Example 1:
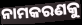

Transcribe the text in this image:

ନାମକରଣକୁ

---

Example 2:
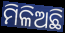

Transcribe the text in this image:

ମିଳିଅଛି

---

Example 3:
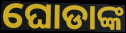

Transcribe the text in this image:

ଘୋଡାଙ୍କ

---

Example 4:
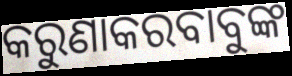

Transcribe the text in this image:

କରୁଣାକରବାବୁଙ୍କ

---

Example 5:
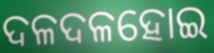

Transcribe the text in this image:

ଦଳଦଳହୋଇ